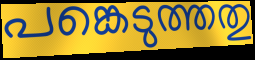
പങ്കെടുത്തതു